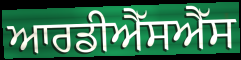
ਆਰਡੀਐੱਸਐੱਸ